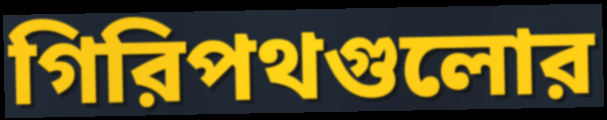
গিরিপথগুলোর